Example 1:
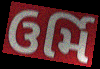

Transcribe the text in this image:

ઉર્મિ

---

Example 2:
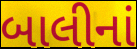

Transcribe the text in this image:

બાલીનાં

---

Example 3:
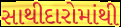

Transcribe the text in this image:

સાથીદારોમાંથી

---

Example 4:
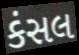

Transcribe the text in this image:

કંસલ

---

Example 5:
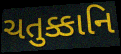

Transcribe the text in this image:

ચતુક્કાનિ